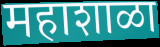
महाशाळा